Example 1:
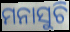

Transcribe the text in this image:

ମନାସୁଚି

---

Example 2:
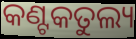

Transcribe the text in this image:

କଣ୍ଟକତୁଲ୍ୟ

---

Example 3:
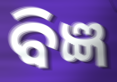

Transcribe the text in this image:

ବିଜ୍ଞ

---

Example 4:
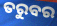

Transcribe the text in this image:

ତରୁବର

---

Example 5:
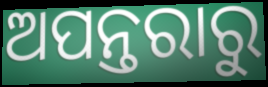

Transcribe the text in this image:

ଅପନ୍ତରାରୁ